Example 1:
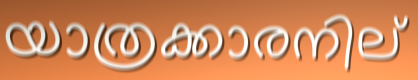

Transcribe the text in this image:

യാത്രക്കാരനില്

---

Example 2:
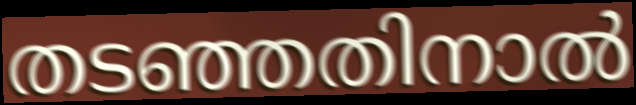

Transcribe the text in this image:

തടഞ്ഞതിനാൽ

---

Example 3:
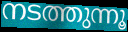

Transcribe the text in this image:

നടത്തുന്നൂ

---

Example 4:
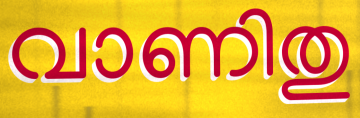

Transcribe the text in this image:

വാണിതു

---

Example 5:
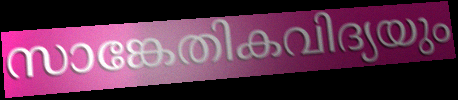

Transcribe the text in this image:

സാങ്കേതികവിദ്യയും